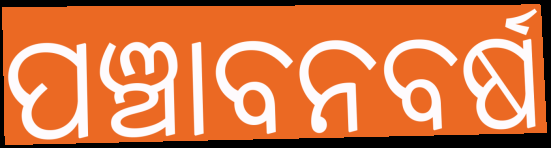
ପଞ୍ଚାବନବର୍ଷ